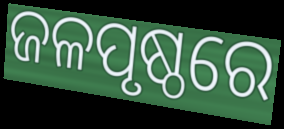
ଜଳପୃଷ୍ଠରେ